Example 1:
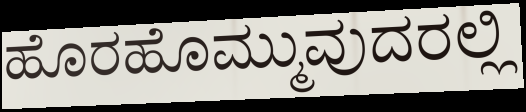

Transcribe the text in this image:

ಹೊರಹೊಮ್ಮುವುದರಲ್ಲಿ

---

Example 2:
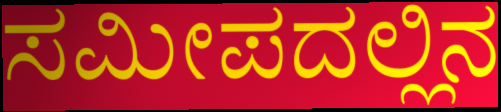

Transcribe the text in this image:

ಸಮೀಪದಲ್ಲಿನ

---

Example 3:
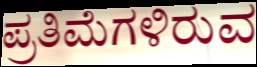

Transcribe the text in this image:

ಪ್ರತಿಮೆಗಳಿರುವ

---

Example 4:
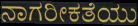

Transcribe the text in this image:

ನಾಗರೀಕತೆಯು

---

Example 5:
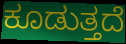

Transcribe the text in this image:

ಕೂಡುತ್ತದೆ